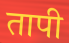
तापी